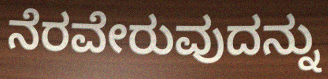
ನೆರವೇರುವುದನ್ನು